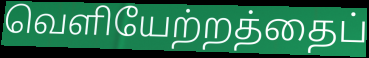
வெளியேற்றத்தைப்